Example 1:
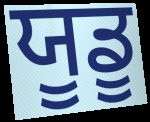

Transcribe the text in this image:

ਯੂਡੂ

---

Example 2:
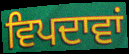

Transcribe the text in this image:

ਵਿਪਦਾਵਾਂ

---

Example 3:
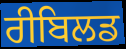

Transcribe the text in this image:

ਰੀਬਿਲਡ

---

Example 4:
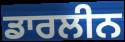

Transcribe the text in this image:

ਡਾਰਲੀਨ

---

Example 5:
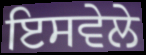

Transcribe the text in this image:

ਇਸਵੇਲੇ